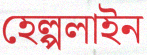
হেল্পলাইন